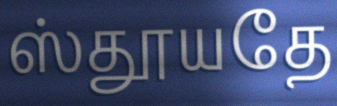
ஸ்தூயதே